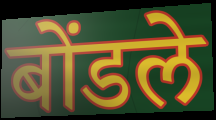
बोंडले